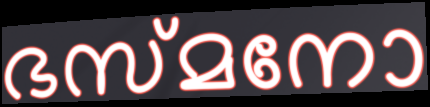
ഭസ്മനോ